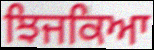
ਝਿਜਕਿਆ